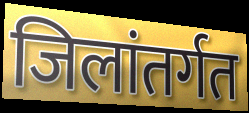
जिलांतर्गत